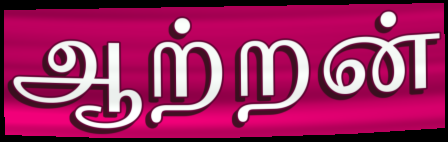
ஆற்றன்